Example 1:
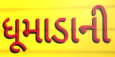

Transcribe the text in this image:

ધૂમાડાની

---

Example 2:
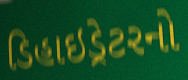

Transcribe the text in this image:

ડિહાઇડ્રેટરનો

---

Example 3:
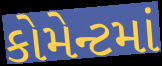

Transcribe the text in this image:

કોમેન્ટમાં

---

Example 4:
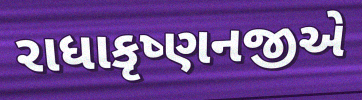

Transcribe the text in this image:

રાધાકૃષ્ણનજીએ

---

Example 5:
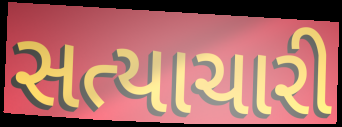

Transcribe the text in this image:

સત્યાચારી